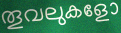
തൂവലുകളോ